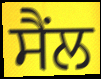
ਸੈਂਲ